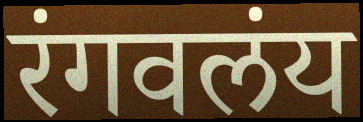
रंगवलंय